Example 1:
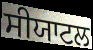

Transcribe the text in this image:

ਸੀਯਾਟਲ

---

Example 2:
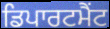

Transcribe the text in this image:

ਡਿਪਾਰਟਮੈਂਟ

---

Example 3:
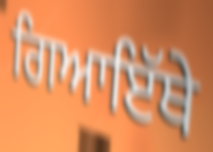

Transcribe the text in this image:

ਗਿਆਇੱਥੇ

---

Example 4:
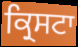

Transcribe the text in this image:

ਕ੍ਰਿਸਟਾ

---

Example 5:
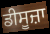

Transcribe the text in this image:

ਡੀਸੂਜ਼ਾ